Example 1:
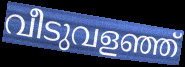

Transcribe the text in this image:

വീടുവളഞ്ഞ്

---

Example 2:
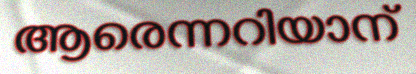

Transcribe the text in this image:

ആരെന്നറിയാന്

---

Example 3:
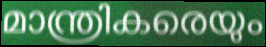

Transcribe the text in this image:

മാന്ത്രികരെയും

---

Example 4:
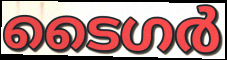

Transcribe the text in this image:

ടൈഗർ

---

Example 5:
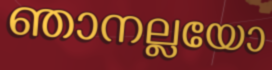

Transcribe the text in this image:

ഞാനല്ലയോ